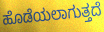
ಹೊಡೆಯಲಾಗುತ್ತದೆ